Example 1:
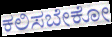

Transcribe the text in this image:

ಕಲಿಸಬೇಕೋ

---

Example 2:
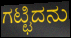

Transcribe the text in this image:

ಗಟ್ಟಿದನು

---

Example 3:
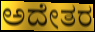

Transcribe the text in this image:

ಅದೇತರ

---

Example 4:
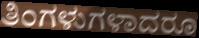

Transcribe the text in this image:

ತಿಂಗಳುಗಳಾದರೂ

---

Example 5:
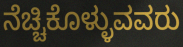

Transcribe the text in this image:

ನೆಚ್ಚಿಕೊಳ್ಳುವವರು